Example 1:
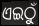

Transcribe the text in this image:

ଏଇଠୁଁ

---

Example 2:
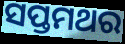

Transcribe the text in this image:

ସପ୍ତମଥର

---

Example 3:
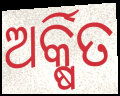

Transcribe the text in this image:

ଅର୍କ୍ଷିତ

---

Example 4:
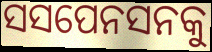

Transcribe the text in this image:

ସସପେନସନକୁ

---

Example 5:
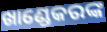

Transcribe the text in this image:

ଖାଣ୍ଡେକରଙ୍କ